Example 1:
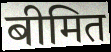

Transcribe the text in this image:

बीमित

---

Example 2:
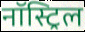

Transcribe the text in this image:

नॉस्ट्रिल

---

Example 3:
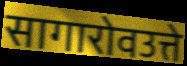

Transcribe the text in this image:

सागारोवउत्ते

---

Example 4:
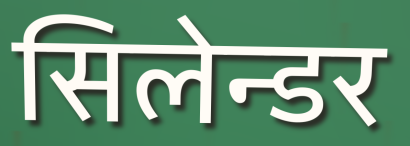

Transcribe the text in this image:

सिलेन्डर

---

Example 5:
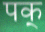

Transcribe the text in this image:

पक्